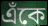
এঁকে